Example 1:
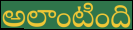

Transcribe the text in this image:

అలాంటింది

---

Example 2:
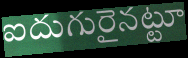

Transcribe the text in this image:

ఐదుగురైనట్టూ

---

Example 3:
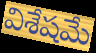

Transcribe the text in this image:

విశేషమే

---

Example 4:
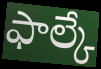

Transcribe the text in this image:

ఫాల్కే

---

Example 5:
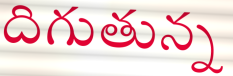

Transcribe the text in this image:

దిగుతున్న